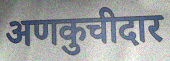
अणकुचीदार